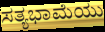
ಸತ್ಯಭಾಮೆಯು